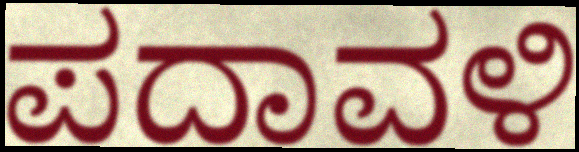
ಪದಾವಳಿ